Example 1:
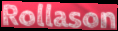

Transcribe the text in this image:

Rollason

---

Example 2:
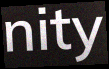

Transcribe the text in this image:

nity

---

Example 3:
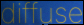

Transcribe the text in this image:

diffuse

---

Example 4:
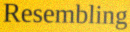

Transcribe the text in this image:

Resembling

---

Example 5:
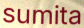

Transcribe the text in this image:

sumita